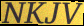
NKJV